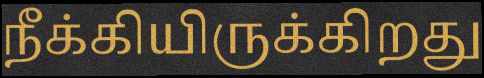
நீக்கியிருக்கிறது